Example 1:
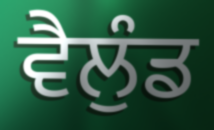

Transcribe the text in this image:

ਵੈਲੁੰਡ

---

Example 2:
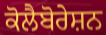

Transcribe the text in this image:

ਕੋਲੈਬੋਰੇਸ਼ਨ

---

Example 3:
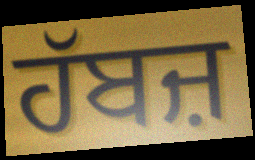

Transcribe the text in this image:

ਹੱਬਜ਼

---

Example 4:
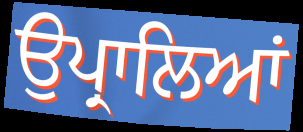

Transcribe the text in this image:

ਉਪ੍ਰਾਲਿਆਂ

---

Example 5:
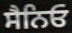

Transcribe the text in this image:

ਸੈਨਿਓ